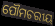
ପୌମଚରୀୟ